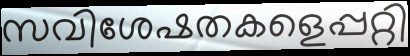
സവിശേഷതകളെപ്പറ്റി